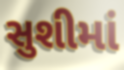
સુશીમાં